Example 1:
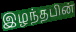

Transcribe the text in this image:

இழந்தபின்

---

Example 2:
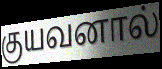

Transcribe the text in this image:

குயவனால்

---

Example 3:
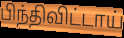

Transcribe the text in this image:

பிந்திவிட்டாய்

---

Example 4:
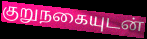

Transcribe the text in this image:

குறுநகையுடன்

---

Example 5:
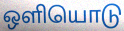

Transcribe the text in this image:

ஒளியொடு